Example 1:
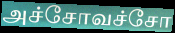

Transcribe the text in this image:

அச்சோவச்சோ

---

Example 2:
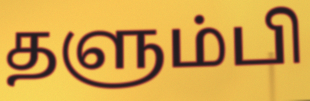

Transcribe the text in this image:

தளும்பி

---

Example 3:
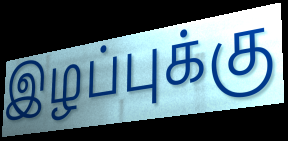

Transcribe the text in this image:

இழப்புக்கு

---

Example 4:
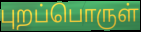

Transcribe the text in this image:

புறப்பொருள்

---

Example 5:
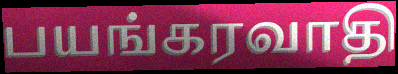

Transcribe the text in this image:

பயங்கரவாதி